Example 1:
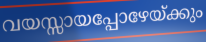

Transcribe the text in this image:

വയസ്സായപ്പോഴേയ്ക്കും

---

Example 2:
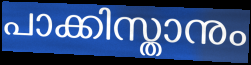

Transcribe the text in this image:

പാക്കിസ്താനും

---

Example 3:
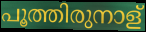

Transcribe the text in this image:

പൂത്തിരുനാള്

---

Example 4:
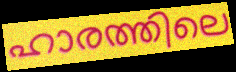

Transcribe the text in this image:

ഹാരത്തിലെ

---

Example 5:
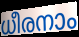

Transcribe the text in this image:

ധീരനാം